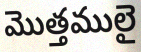
మొత్తములై